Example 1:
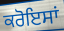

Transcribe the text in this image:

ਕਰੋਇਸਾਂ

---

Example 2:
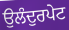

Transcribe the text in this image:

ਉਲੰਦੁਰਪੇਟ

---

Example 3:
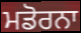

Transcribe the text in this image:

ਮਡੋਰਨਾ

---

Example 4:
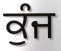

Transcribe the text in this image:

ਕੁੰਜ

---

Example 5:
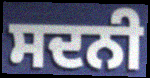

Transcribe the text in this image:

ਸਦਨੀ